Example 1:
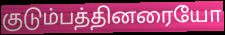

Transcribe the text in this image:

குடும்பத்தினரையோ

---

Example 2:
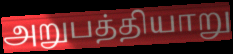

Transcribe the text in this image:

அறுபத்தியாறு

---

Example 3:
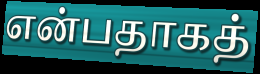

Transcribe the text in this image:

என்பதாகத்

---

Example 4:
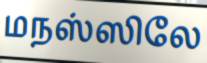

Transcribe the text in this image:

மநஸ்ஸிலே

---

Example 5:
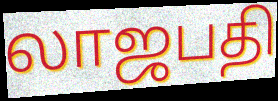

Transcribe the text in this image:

லாஜபதி